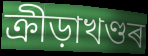
ক্ৰীড়াখণ্ডৰ